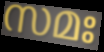
സമഃ